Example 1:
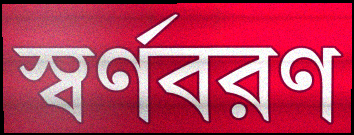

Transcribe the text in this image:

স্বর্ণবরণ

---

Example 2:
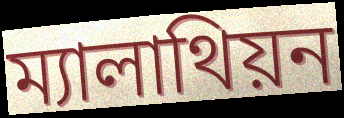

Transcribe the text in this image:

ম্যালাথিয়ন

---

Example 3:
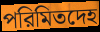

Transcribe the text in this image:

পরিমিতদেহ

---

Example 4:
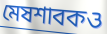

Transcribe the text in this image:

মেষশাবকও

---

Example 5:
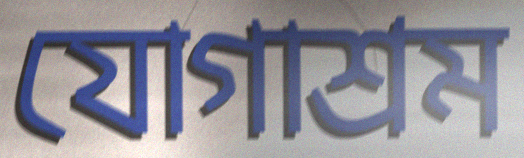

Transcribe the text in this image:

যোগাশ্রম